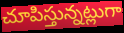
చూపిస్తున్నట్లుగా